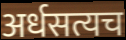
अर्धसत्यच